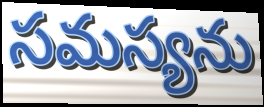
సమస్యను